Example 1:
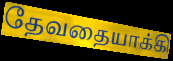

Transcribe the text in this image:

தேவதையாக்கி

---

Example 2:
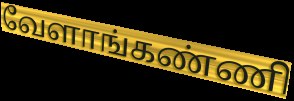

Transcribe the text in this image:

வேளாங்கண்ணி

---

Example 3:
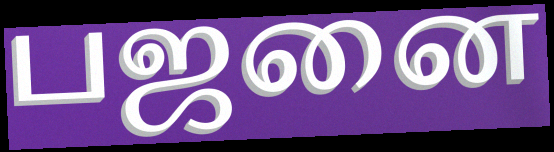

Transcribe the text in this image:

பஜனை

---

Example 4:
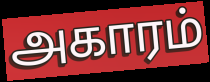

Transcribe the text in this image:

அகாரம்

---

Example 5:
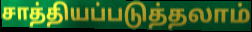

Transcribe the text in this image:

சாத்தியப்படுத்தலாம்